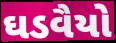
ઘડવૈયો